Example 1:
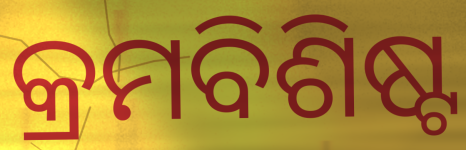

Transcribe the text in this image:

କ୍ରମବିଶିଷ୍ଟ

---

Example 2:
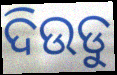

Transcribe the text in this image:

ଦିଉଡୁ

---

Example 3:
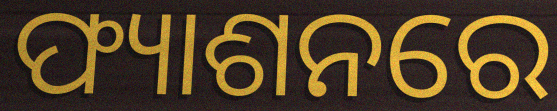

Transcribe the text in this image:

ଫ୍ୟାଶନରେ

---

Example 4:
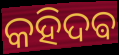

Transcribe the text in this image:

କହିଦଵ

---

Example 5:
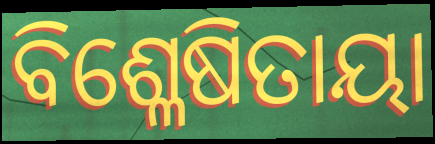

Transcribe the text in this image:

ବିଶ୍ଳେଷିତାୟା